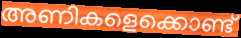
അണികളെക്കൊണ്ട്